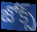
జోక్స్